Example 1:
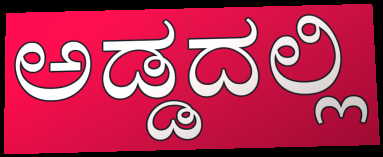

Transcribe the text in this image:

ಅಡ್ಡದಲ್ಲಿ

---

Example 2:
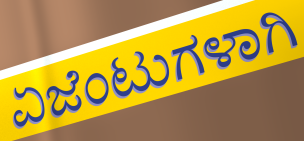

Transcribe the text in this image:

ಏಜೆಂಟುಗಳಾಗಿ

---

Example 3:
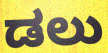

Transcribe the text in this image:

ಡಲು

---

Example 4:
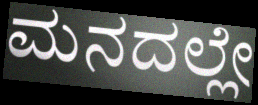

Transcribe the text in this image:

ಮನದಲ್ಲೇ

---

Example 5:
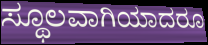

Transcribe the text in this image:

ಸ್ಥೂಲವಾಗಿಯಾದರೂ